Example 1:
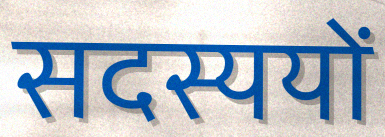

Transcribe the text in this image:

सदस्ययों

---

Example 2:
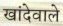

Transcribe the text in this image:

खांदेवाले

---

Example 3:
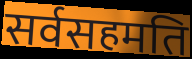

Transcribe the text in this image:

सर्वसहमति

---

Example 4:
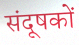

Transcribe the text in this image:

संदूषकों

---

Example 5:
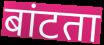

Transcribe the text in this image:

बांटता